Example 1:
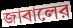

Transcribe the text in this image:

জাবালের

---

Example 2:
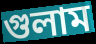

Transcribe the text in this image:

গুলাম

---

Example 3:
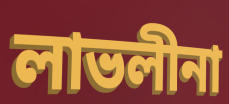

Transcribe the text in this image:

লাভলীনা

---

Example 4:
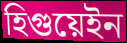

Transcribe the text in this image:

হিগুয়েইন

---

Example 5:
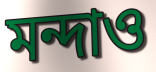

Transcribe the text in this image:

মন্দাও